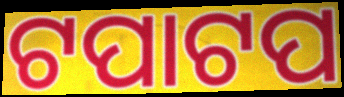
ଟପାଟପ